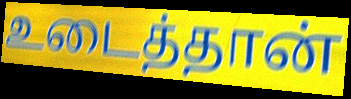
உடைத்தான்